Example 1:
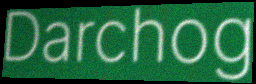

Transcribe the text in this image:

Darchog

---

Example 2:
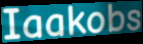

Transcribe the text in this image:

Iaakobs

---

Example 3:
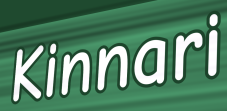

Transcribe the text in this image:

Kinnari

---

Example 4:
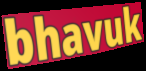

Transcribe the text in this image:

bhavuk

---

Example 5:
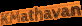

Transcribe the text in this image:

KMathavan